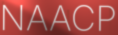
NAACP